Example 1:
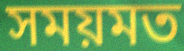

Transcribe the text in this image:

সময়মত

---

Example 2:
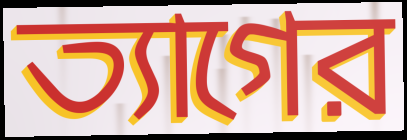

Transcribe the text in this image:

ত্যাগের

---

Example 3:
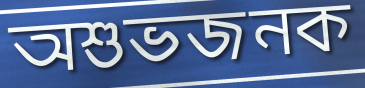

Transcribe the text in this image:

অশুভজনক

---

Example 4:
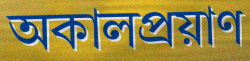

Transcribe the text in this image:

অকালপ্রয়াণ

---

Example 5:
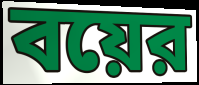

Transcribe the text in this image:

বয়ের